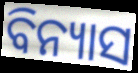
ବିନ୍ୟାସ